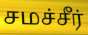
சமச்சீர்